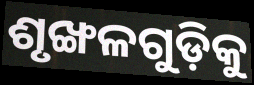
ଶୃଙ୍ଖଳଗୁଡ଼ିକୁ